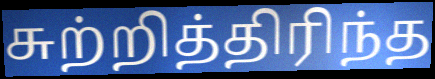
சுற்றித்திரிந்த